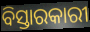
ବିସ୍ତାରକାରୀ